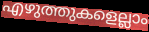
എഴുത്തുകളെല്ലാം